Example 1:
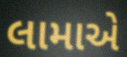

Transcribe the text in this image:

લામાએ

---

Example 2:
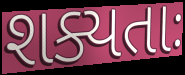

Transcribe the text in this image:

શક્યતાઃ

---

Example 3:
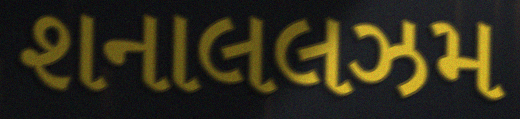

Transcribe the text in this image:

શનાલલઝમ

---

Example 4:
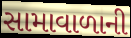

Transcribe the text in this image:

સામાવાળાની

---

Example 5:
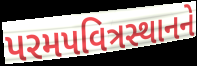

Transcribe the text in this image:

પરમપવિત્રસ્થાનને